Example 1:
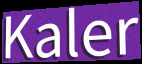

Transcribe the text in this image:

Kaler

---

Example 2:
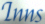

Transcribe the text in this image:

Inns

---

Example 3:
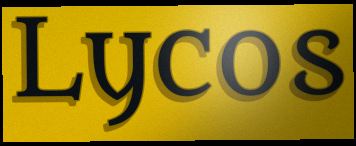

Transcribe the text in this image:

Lycos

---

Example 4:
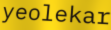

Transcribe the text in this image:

yeolekar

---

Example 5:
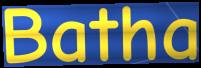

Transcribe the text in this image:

Batha